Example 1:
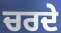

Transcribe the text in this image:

ਚਰਦੇ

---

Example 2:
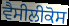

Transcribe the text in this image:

ਵੈਸੀਲੀਕੋਸ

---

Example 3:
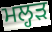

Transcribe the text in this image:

ਮਲ੍ਹੜ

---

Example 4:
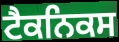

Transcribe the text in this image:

ਟੈਕਨਿਕਸ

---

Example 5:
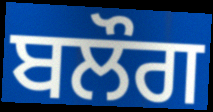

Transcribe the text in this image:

ਬਲੌਗ